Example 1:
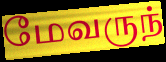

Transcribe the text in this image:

மேவருந்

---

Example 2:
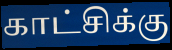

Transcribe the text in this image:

காட்சிக்கு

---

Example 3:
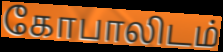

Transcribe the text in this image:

கோபாலிடம்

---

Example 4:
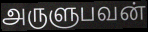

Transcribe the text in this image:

அருளுபவன்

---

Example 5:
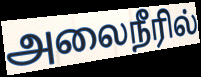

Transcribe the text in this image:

அலைநீரில்